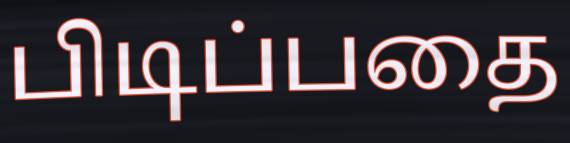
பிடிப்பதை